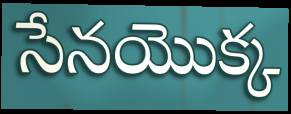
సేనయొక్క